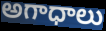
అగాధాలు